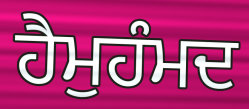
ਹੈਮੁਹੰਮਦ